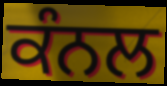
ਕੰਨਲ